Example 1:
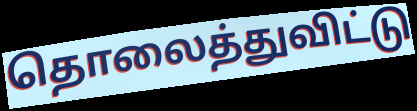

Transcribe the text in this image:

தொலைத்துவிட்டு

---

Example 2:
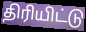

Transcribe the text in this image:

திரியிட்டு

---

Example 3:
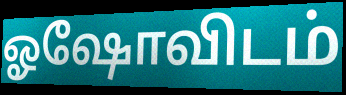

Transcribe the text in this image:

ஓஷோவிடம்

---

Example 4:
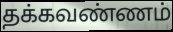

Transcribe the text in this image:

தக்கவண்ணம்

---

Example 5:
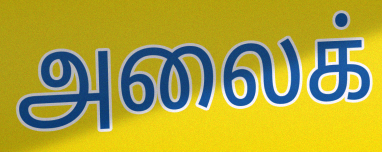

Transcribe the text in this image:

அலைக்